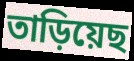
তাড়িয়েছ